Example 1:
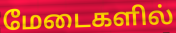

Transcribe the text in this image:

மேடைகளில்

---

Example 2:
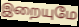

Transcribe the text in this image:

இறையுமே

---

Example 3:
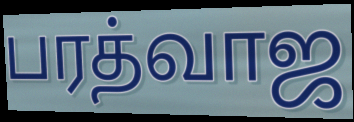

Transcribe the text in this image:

பரத்வாஜ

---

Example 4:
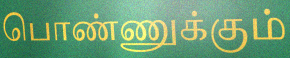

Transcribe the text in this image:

பொண்ணுக்கும்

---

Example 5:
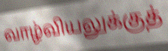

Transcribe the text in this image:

வாழ்வியலுக்குத்